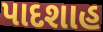
પાદશાહ